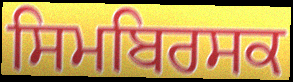
ਸਿਮਬਿਰਸਕ